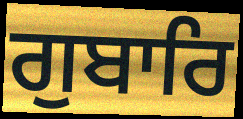
ਗੁਬਾਰਿ